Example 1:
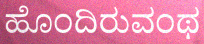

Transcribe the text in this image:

ಹೊಂದಿರುವಂಥ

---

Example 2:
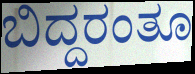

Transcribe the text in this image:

ಬಿದ್ದರಂತೂ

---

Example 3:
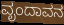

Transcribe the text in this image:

ವೃಂದಾವನ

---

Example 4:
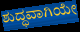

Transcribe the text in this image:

ಶುದ್ಧವಾಗಿಯೇ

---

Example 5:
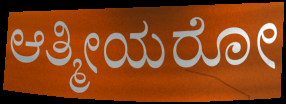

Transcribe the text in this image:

ಆತ್ಮೀಯರೋ